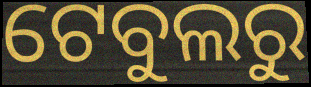
ଟେବୁଲରୁ